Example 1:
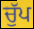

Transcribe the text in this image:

ਚੁੱਪ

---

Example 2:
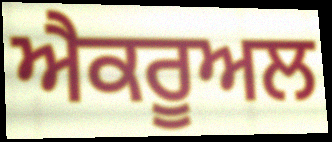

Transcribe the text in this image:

ਐਕਰੂਅਲ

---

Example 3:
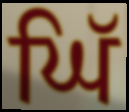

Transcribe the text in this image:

ਘਿੱ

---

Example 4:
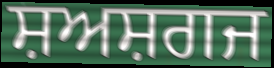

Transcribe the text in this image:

ਸ਼ਅਸ਼ਗਜ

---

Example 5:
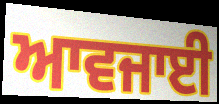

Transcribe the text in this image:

ਆਵਜਾਈ